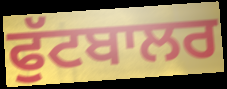
ਫੁੱਟਬਾਲਰ